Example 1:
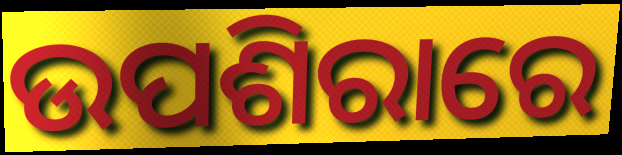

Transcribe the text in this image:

ଉପଶିରାରେ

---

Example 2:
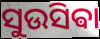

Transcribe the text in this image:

ସୁଉସିଵା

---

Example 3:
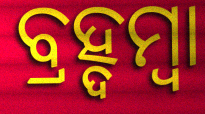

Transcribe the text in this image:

ବ୍ରହ୍ଦମ୍ବା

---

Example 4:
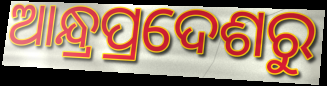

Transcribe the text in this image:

ଆନ୍ଧ୍ରପ୍ରଦେଶରୁ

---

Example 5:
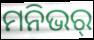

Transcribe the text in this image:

ମନିଭର୍